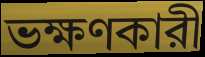
ভক্ষণকারী